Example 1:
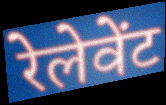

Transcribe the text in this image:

रेलेवेंट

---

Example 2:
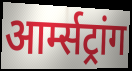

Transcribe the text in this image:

आर्म्सट्रांग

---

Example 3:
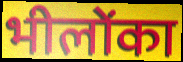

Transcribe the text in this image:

भीलोंका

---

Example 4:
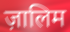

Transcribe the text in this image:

ज़ालिम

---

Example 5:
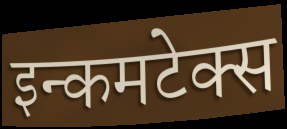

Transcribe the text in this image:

इन्कमटेक्स